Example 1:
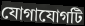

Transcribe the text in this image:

যোগাযোগটি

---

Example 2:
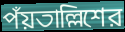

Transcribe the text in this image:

পঁয়তাল্লিশের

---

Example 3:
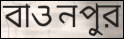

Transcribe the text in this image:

বাওনপুর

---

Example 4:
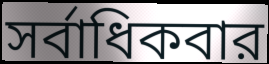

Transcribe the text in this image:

সর্বাধিকবার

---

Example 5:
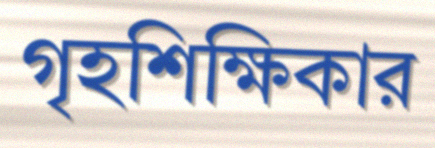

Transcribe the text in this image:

গৃহশিক্ষিকার